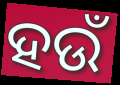
ହଉଁ